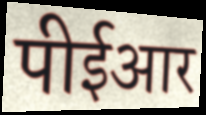
पीईआर